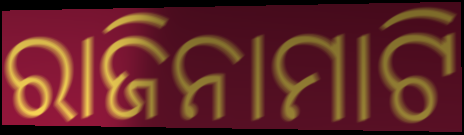
ରାଜିନାମାଟି